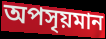
অপসৃয়মান